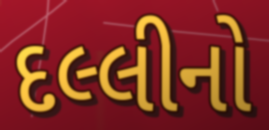
દલ્લીનો